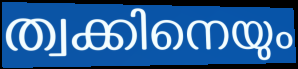
ത്വക്കിനെയും